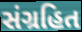
સંગ્રહિત